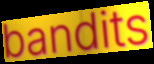
bandits